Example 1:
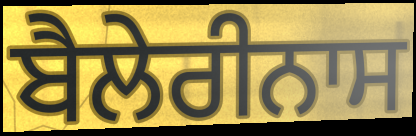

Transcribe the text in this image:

ਬੈਲੇਰੀਨਾਸ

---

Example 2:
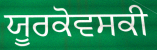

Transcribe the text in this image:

ਯੂਰਕੋਵਸਕੀ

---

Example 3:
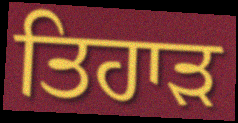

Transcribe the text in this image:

ਤਿਹਾੜ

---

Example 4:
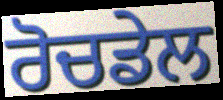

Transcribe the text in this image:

ਰੋਚਡੇਲ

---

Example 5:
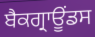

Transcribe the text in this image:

ਬੈਕਗ੍ਰਾਊਂਡਸ